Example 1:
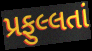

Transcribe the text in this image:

પ્રફુલ્લતાં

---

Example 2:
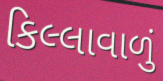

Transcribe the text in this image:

કિલ્લાવાળું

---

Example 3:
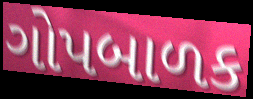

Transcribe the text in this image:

ગોપબાળક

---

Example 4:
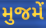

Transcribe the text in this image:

મુજમેં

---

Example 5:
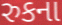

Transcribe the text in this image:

રુકના